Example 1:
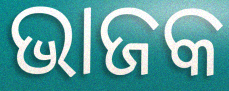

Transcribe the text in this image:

ଭାଜକ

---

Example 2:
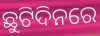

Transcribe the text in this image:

ଛୁଟିଦିନରେ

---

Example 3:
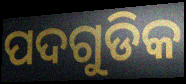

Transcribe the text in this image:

ପଦଗୁଡିକ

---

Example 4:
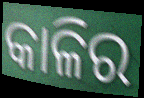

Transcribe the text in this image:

କାଳିର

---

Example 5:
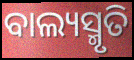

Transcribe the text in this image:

ବାଲ୍ୟସ୍ମୃତି